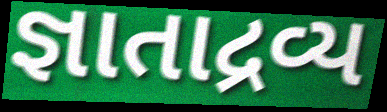
જ્ઞાતાદ્રવ્ય